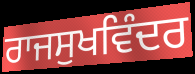
ਰਾਜਸੁਖਵਿੰਦਰ